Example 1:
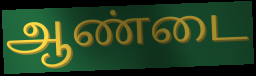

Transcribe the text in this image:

ஆண்டை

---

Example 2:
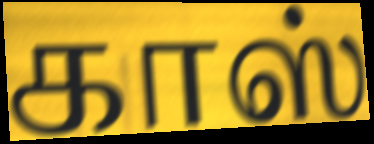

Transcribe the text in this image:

காஸ்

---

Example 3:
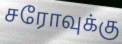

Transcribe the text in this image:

சரோவுக்கு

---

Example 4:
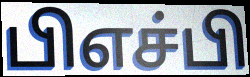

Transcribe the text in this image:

பிஎச்பி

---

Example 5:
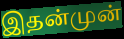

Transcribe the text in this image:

இதன்முன்